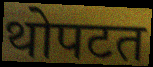
थोपटत